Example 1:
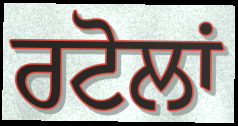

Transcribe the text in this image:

ਰਟੋਲਾਂ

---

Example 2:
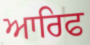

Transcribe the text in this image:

ਆਰਿਫ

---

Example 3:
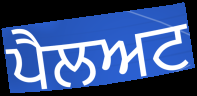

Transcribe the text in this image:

ਪੈਲਅਟ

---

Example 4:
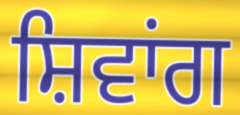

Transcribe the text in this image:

ਸ਼ਿਵਾਂਗ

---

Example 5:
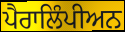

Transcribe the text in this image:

ਪੈਰਾਲਿੰਪੀਅਨ